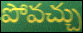
పోవచ్చు